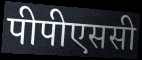
पीपीएससी